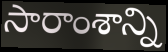
సారాంశాన్ని